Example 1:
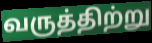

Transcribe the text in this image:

வருத்திற்று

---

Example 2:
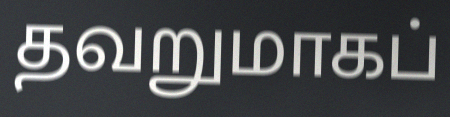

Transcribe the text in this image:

தவறுமாகப்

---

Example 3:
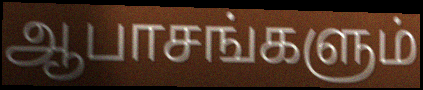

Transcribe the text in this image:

ஆபாசங்களும்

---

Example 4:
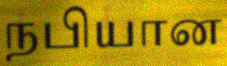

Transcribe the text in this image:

நபியான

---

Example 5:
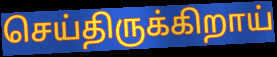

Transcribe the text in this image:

செய்திருக்கிறாய்